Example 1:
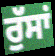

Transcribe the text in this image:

ਰੁੱਸਾਂ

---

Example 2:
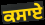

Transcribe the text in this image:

ਕਸਾਏ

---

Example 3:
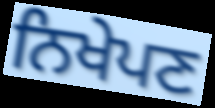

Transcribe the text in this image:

ਨਿਖੇਪਣ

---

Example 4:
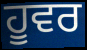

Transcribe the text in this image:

ਹੂਵਰ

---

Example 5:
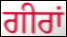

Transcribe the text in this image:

ਗੀਰਾਂ